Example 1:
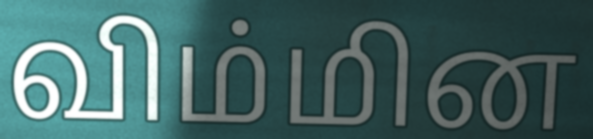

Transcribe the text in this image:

விம்மின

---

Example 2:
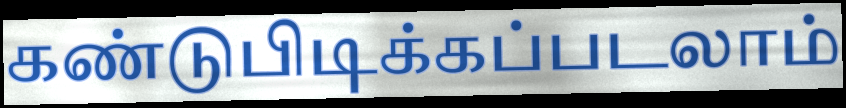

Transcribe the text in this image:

கண்டுபிடிக்கப்படலாம்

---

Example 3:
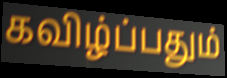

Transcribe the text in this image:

கவிழ்ப்பதும்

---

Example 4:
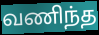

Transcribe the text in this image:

வணிந்த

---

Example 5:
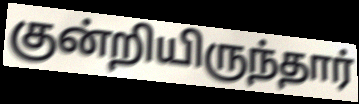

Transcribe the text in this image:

குன்றியிருந்தார்